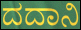
ದದಾನಿ